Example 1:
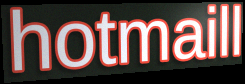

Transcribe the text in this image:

hotmaill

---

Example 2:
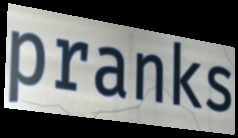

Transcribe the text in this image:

pranks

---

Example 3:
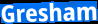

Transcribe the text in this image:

Gresham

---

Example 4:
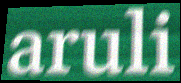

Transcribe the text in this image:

aruli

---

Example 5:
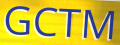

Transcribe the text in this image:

GCTM